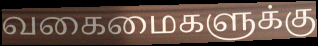
வகைமைகளுக்கு